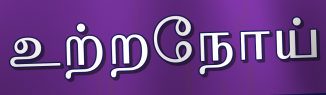
உற்றநோய்